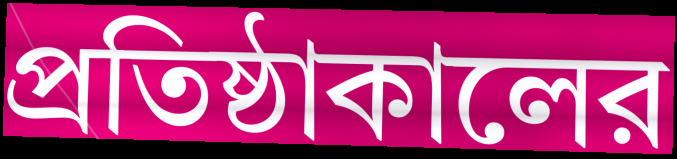
প্রতিষ্ঠাকালের